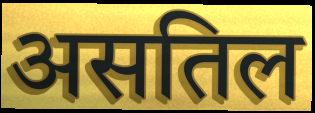
असतिल